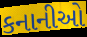
કનાનીઓ